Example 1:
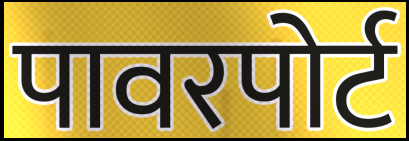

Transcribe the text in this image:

पावरपोर्ट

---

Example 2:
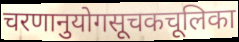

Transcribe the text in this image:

चरणानुयोगसूचकचूलिका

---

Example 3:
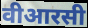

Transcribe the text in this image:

वीआरसी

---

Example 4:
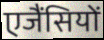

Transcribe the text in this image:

एजैंसियों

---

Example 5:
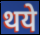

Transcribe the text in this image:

थये